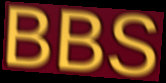
BBS